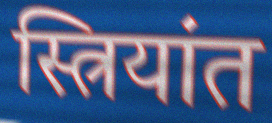
स्त्रियांत